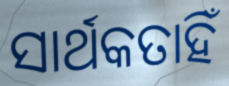
ସାର୍ଥକତାହିଁ